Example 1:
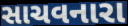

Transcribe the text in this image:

સાચવનારા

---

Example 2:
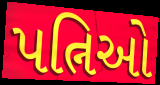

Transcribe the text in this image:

પત્નિઓ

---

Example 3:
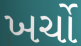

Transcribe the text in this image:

ખર્ચો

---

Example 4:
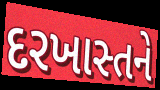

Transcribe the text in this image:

દરખાસ્તને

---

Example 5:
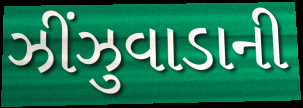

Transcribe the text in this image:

ઝીંઝુવાડાની